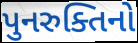
પુનરુક્તિનો